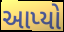
આપ્યો